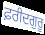
ਫ਼ਰੀਦਗੁਰੂ